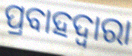
ପ୍ରବାହଦ୍ୱାରା